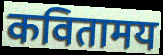
कवितामय